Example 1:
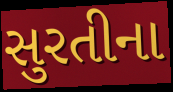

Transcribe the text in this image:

સુરતીના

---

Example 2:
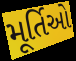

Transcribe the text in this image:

મૂર્તિઓ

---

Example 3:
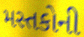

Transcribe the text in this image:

મસ્તકોની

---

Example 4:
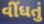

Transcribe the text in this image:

વીંધતું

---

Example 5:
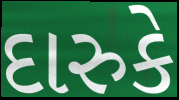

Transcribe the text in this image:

દારુકે